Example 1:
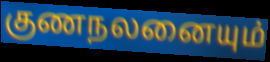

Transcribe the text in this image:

குணநலனையும்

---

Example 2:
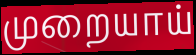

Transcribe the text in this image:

முறையாய்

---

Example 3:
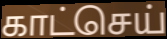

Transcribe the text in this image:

காட்செய்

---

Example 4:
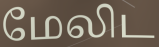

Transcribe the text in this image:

மேலிட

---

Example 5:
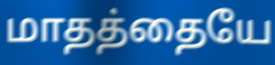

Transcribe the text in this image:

மாதத்தையே